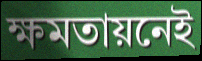
ক্ষমতায়নেই